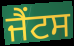
ਜੈਂਟਸ